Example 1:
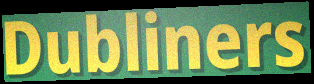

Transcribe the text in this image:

Dubliners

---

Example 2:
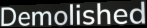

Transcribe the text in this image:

Demolished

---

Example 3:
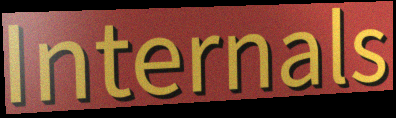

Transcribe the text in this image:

Internals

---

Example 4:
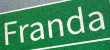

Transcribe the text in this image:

Franda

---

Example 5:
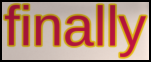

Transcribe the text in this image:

finally